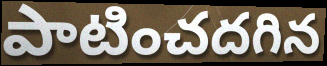
పాటించదగిన